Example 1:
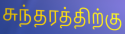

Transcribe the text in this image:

சுந்தரத்திற்கு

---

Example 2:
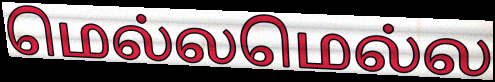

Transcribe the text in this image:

மெல்லமெல்ல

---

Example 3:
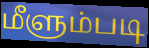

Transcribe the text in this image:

மீளும்படி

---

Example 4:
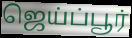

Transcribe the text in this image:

ஜெய்ப்பூர்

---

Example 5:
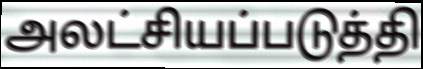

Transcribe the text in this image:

அலட்சியப்படுத்தி